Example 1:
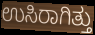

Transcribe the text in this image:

ಉಸಿರಾಗಿತ್ತು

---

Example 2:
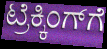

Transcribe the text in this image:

ಟ್ರೆಕ್ಕಿಂಗ್‌ಗೆ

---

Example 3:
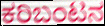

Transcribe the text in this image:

ಕರಿಬಂಟನ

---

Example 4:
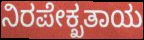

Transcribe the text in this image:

ನಿರಪೇಕ್ಖತಾಯ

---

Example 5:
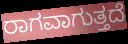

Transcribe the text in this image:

ರಾಗವಾಗುತ್ತದೆ